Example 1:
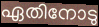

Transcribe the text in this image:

ഏതിനോടു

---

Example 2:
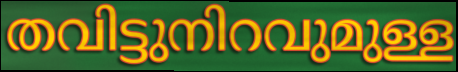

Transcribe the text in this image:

തവിട്ടുനിറവുമുള്ള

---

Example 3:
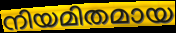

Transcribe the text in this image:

നിയമിതമായ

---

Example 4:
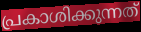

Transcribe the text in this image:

പ്രകാശിക്കുന്നത്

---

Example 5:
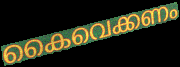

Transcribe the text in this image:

കൈവെക്കണം